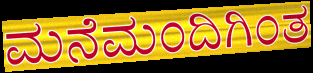
ಮನೆಮಂದಿಗಿಂತ